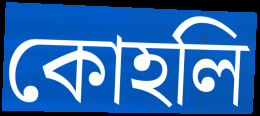
কোহলি